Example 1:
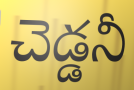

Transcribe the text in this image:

చెడ్డనీ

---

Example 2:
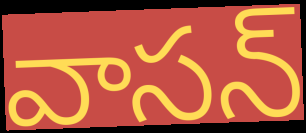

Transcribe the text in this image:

వాసన్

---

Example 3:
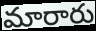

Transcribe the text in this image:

మారారు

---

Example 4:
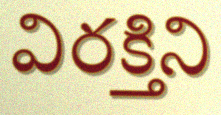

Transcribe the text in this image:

విరక్తిని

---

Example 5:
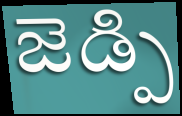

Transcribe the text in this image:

జెడ్పి